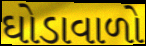
ઘોડાવાળો